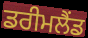
ਡਰੀਮਲੈਂਡ